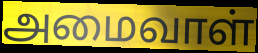
அமைவாள்